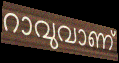
റാവുവാണ്